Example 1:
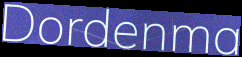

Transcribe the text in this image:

Dordenma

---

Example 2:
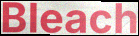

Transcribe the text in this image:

Bleach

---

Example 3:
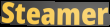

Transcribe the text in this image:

Steamer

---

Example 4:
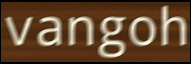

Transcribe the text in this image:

vangoh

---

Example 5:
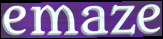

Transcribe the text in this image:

emaze